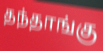
தந்தாங்கு